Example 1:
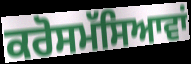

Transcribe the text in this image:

ਕਰੋਸਮੱਸਿਆਵਾਂ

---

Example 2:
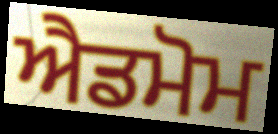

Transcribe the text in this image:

ਐਡਮੋਮ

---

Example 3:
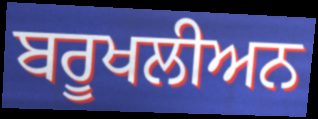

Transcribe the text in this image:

ਬਰੂਖਲੀਅਨ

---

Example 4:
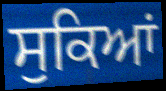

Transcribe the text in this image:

ਸੁਕਿਆਂ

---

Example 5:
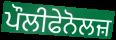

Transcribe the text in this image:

ਪੌਲੀਫੇਨੋਲਜ਼